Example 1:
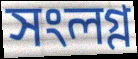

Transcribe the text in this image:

সংলগ্ন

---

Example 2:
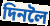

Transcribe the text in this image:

দিনলৈ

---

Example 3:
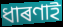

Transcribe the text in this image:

ধাৰণাই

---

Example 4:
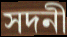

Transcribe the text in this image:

সদনী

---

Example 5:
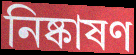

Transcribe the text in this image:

নিষ্কাষণ